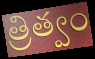
త్రిత్వం